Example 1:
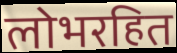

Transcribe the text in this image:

लोभरहित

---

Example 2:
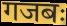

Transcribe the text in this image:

गजबः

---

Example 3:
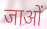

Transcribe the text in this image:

जाओं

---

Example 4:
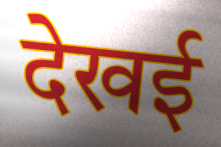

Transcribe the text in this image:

देखई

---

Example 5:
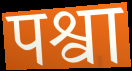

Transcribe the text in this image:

पश्वा